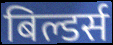
बिल्डर्स